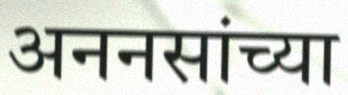
अननसांच्या